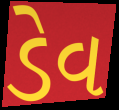
ડેવ